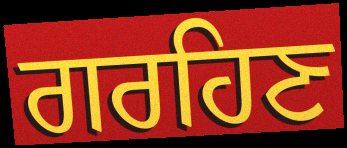
ਗਰਹਿਣ